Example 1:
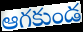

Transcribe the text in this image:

ఆగకుండ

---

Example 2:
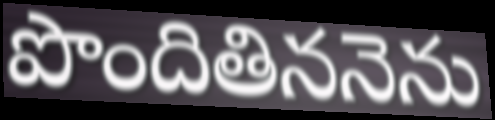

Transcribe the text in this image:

పొందితిననెను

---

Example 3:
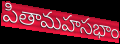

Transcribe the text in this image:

పితామహసభాం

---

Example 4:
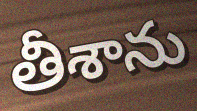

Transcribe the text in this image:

తీశాను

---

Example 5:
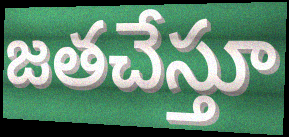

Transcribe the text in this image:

జతచేస్తూ